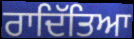
ਰਾਦਿੱਤਿਆ